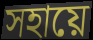
সহায়ে